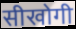
सीखोगी